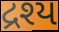
દ્રશ્ય